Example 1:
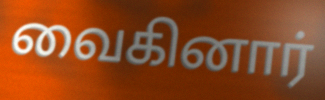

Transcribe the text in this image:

வைகினார்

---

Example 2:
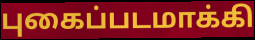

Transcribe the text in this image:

புகைப்படமாக்கி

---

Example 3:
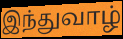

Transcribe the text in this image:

இந்துவாழ்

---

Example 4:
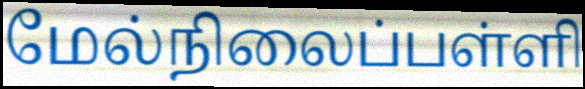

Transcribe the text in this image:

மேல்நிலைப்பள்ளி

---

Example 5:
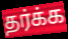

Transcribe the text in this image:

தர்க்க